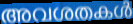
അവശതകൾ